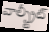
వాల్స్ట్రీట్